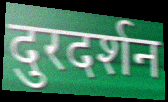
दुरदर्शन